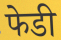
फेडी